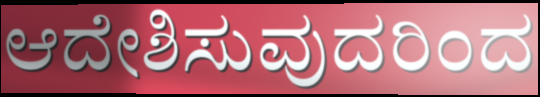
ಆದೇಶಿಸುವುದರಿಂದ